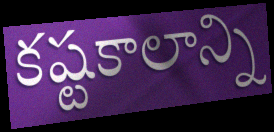
కష్టకాలాన్ని